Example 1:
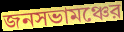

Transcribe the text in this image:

জনসভামঞ্চের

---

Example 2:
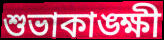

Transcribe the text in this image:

শুভাকাঙ্ক্ষী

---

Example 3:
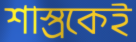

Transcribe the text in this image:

শাস্ত্রকেই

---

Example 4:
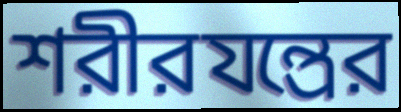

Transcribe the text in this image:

শরীরযন্ত্রের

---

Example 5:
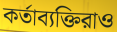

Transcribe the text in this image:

কর্তাব্যক্তিরাও